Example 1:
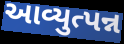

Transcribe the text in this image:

આવ્યુત્પન્ન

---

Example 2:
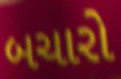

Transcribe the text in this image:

બચારો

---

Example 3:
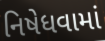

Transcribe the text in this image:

નિષેધવામાં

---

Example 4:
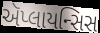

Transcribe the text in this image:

ઍપ્લાયન્સિસ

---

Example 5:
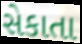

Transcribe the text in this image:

સેકાતા